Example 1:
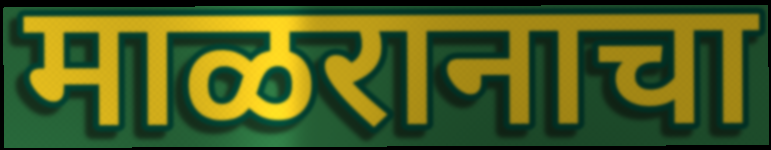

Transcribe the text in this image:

माळरानाचा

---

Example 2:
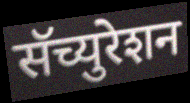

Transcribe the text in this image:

सॅच्युरेशन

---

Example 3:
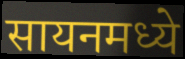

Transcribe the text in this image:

सायनमध्ये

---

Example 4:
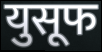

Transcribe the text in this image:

युसूफ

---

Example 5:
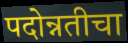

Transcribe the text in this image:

पदोन्नतीचा